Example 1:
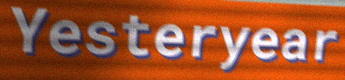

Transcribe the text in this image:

Yesteryear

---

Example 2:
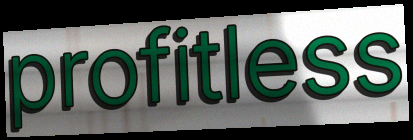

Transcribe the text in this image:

profitless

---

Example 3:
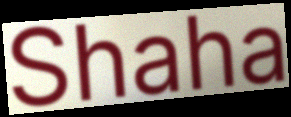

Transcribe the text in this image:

Shaha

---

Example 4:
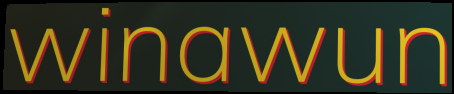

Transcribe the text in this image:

winawun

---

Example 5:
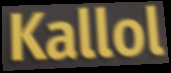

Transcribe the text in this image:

Kallol